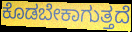
ಕೊಡಬೇಕಾಗುತ್ತದೆ